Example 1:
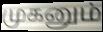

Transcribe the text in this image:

முகனும்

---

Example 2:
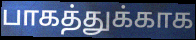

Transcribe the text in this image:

பாகத்துக்காக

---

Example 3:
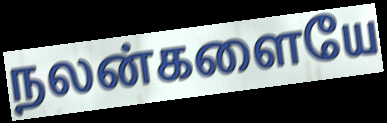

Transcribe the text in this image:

நலன்களையே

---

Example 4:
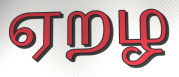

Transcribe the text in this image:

ஏறழ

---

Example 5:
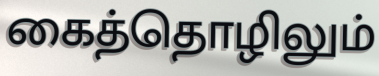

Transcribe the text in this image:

கைத்தொழிலும்